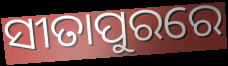
ସୀତାପୁରରେ